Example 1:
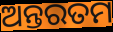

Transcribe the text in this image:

ଅନ୍ତରତମ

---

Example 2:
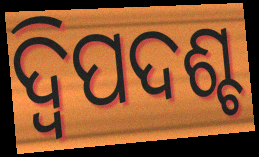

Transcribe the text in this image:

ଦ୍ବିପଦଶ୍ଚ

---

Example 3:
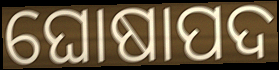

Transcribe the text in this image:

ଘୋଷାପଦ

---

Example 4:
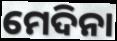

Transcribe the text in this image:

ମେଦିନା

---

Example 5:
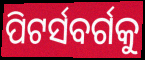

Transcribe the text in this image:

ପିଟର୍ସବର୍ଗକୁ